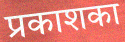
प्रकाशका